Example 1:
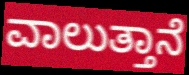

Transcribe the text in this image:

ವಾಲುತ್ತಾನೆ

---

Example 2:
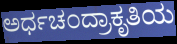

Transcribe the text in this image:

ಅರ್ಧಚಂದ್ರಾಕೃತಿಯ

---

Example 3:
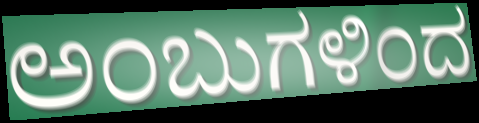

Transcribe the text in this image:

ಅಂಬುಗಳಿಂದ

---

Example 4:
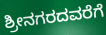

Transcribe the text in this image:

ಶ್ರೀನಗರದವರೆಗೆ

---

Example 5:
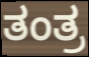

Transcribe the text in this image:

ತಂತ್ರ